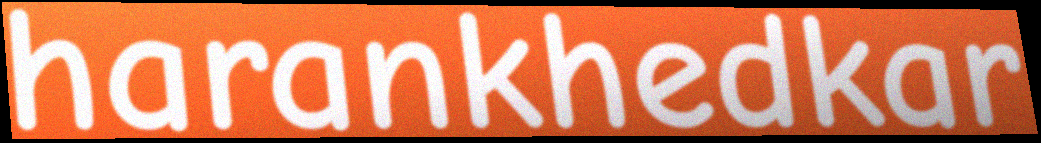
harankhedkar